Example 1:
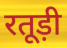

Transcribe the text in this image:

रतूड़ी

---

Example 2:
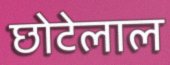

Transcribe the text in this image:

छोटेलाल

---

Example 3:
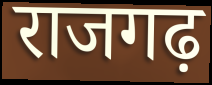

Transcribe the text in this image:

राजगढ़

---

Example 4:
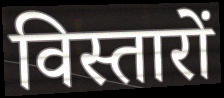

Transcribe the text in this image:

विस्तारों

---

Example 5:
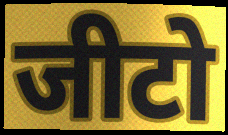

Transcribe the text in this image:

जीटो